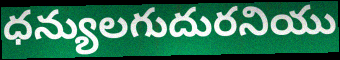
ధన్యులగుదురనియు